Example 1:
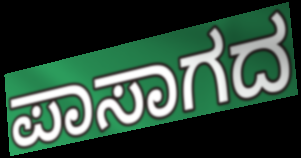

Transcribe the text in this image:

ಪಾಸಾಗದ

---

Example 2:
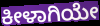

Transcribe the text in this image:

ಕೀಳಾಗಿಯೇ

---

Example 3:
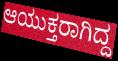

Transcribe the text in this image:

ಆಯುಕ್ತರಾಗಿದ್ದ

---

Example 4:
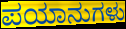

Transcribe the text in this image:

ಪಯಾನುಗಳು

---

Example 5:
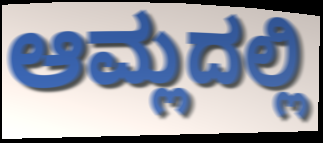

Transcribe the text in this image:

ಆಮ್ಲದಲ್ಲಿ